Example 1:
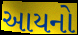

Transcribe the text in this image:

આયનો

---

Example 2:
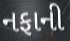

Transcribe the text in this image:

નફાની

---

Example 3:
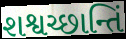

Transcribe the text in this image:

શશ્વચ્છાન્તિં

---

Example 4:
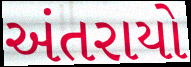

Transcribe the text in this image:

અંતરાયો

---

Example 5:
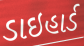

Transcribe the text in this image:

ડાઇહાર્ડ